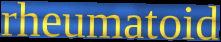
rheumatoid